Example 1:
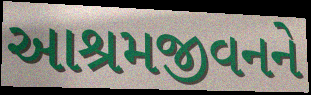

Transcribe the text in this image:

આશ્રમજીવનને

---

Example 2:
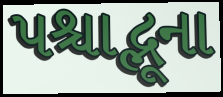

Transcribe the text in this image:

પશ્ચાદ્ભૂના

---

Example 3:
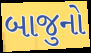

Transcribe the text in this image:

બાજુનો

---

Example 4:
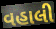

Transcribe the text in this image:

વહાલી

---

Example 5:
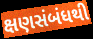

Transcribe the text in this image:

ક્ષણસંબંધથી